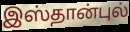
இஸ்தான்புல்